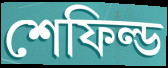
শেফিল্ড